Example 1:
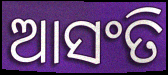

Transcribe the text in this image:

ଆସଂତି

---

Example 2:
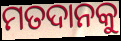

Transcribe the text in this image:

ମତଦାନକୁ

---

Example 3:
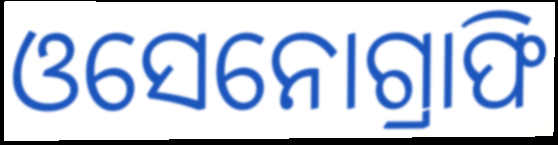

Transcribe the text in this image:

ଓସେନୋଗ୍ରାଫି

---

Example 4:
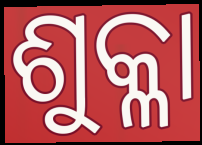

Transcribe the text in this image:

ଶୁକ୍ଳା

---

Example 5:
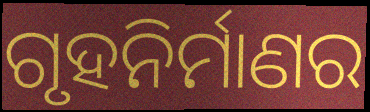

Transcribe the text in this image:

ଗୃହନିର୍ମାଣର